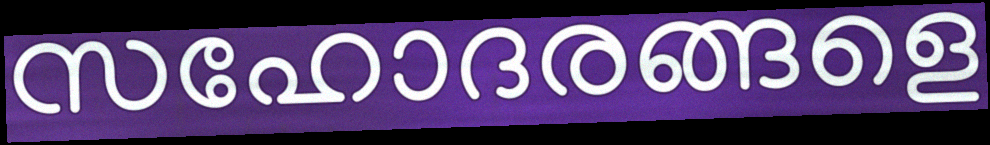
സഹോദരങ്ങളെ